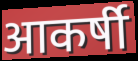
आकर्षी